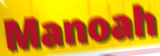
Manoah